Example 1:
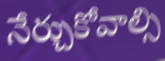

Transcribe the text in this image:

నేర్చుకోవాల్సి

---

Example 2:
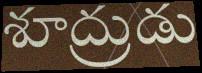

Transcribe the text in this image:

శూద్రుడు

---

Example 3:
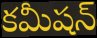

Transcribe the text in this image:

కమీషన్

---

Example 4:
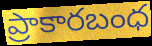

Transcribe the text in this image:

ప్రాకారబంధ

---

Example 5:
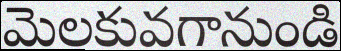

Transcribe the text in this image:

మెలకువగానుండి